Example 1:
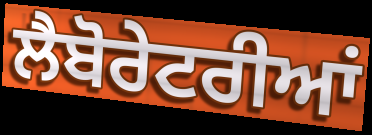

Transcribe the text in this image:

ਲੈਬੋਰੇਟਰੀਆਂ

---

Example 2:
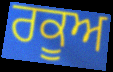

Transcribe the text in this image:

ਰਕੂਅ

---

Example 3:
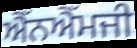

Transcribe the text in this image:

ਐੱਨਐੱਮਜੀ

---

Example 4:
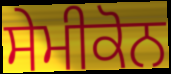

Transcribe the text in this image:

ਸੇਮੀਕੋਨ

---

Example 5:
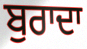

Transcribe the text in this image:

ਬੁਰਾਦਾ